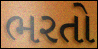
ભરતો